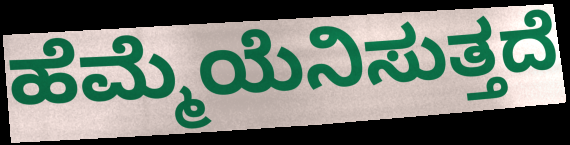
ಹೆಮ್ಮೆಯೆನಿಸುತ್ತದೆ